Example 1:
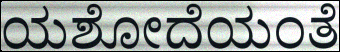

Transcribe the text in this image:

ಯಶೋದೆಯಂತೆ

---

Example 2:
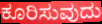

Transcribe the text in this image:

ಕೂರಿಸುವುದು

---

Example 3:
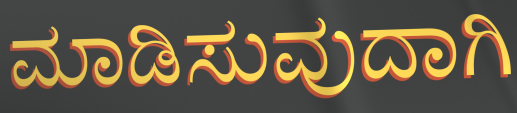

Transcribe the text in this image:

ಮಾಡಿಸುವುದಾಗಿ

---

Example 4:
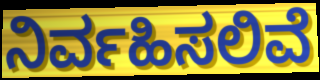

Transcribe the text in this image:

ನಿರ್ವಹಿಸಲಿವೆ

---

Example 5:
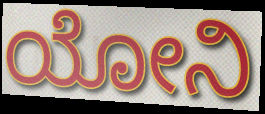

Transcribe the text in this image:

ಯೋನಿ